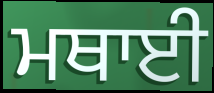
ਮਥਾਈ